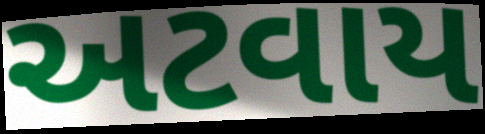
અટવાય